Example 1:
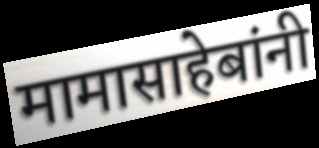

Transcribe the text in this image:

मामासाहेबांनी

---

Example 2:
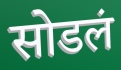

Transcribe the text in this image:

सोडलं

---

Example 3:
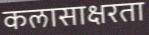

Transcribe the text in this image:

कलासाक्षरता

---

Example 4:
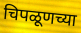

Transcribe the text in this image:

चिपळूणच्या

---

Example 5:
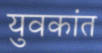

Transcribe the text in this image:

युवकांत